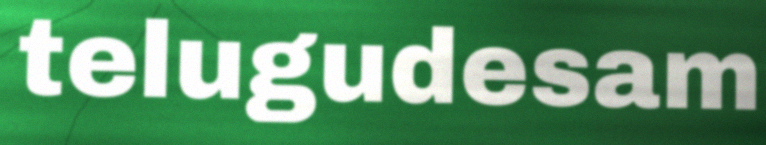
telugudesam